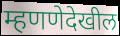
म्हणणेदेखील